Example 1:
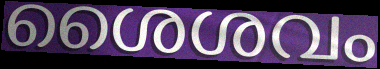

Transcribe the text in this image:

ശൈശവം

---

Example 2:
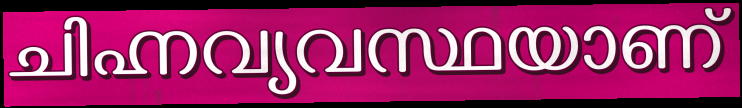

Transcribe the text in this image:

ചിഹ്നവ്യവസ്ഥയാണ്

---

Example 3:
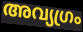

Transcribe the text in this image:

അവ്യഗ്രം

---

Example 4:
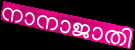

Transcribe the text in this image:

നാനാജാതി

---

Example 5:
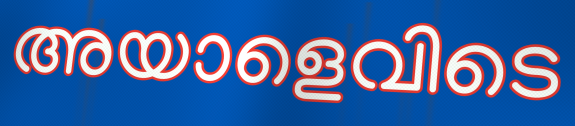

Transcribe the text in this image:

അയാളെവിടെ